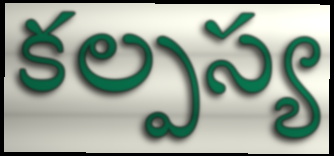
కల్పస్య